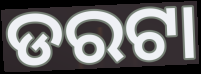
ଡରଟା